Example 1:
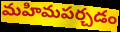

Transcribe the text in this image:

మహిమపర్చడం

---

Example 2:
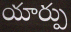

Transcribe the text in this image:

యార్పు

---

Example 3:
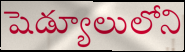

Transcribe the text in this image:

షెడ్యూలులోని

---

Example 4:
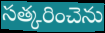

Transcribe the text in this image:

సత్కరించెను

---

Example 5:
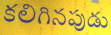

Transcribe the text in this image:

కలిగినపుడు